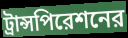
ট্রান্সপিরেশনের